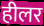
हीलर